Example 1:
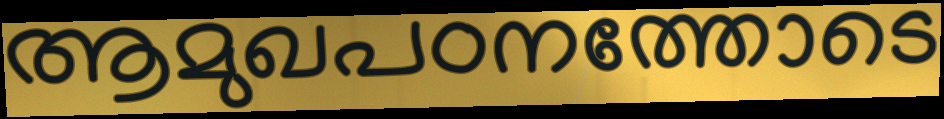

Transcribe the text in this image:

ആമുഖപഠനത്തോടെ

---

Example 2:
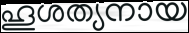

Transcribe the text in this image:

ഹൂശത്യനായ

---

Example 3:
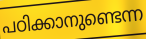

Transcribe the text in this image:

പഠിക്കാനുണ്ടെന്ന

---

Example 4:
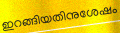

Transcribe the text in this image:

ഇറങ്ങിയതിനുശേഷം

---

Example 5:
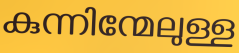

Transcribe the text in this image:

കുന്നിന്മേലുള്ള